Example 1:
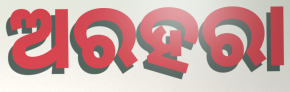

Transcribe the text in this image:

ଅରହରା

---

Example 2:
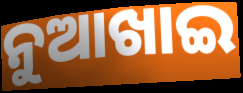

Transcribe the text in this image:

ନୁଆଖାଇ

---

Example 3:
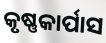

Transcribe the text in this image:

କୃଷ୍ଣକାର୍ପାସ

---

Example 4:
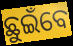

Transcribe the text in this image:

ଛୁଇଁବେ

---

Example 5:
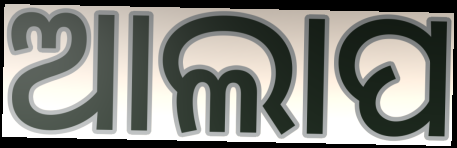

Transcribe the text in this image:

ଆଲାପ